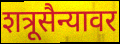
शत्रूसैन्यावर